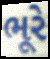
ભૂરે